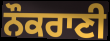
ਨੌਕਰਾਣੀ